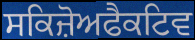
ਸਕਿਜ਼ੋਅਫੈਕਟਿਵ